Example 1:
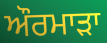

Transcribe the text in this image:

ਔਰਮਾੜਾ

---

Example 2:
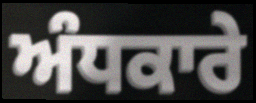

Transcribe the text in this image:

ਅੰਧਕਾਰੇ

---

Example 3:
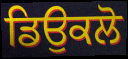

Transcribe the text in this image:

ਡਿਉਕਲੋ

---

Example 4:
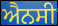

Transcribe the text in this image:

ਐਨਸੀ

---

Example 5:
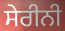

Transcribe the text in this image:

ਸੇਰੀਨੀ